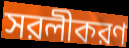
সরলীকরণ